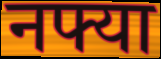
नफ्या